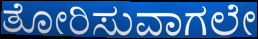
ತೋರಿಸುವಾಗಲೇ